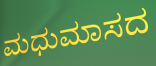
ಮಧುಮಾಸದ